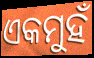
ଏକମୁହଁ